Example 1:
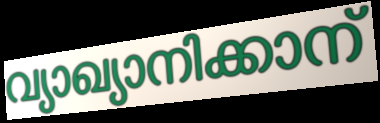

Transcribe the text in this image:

വ്യാഖ്യാനിക്കാന്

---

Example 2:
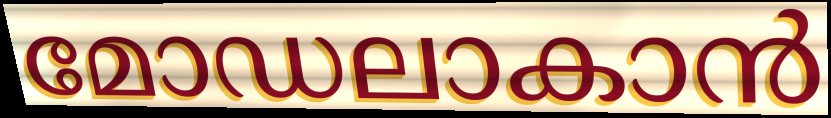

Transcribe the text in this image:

മോഡലാകാൻ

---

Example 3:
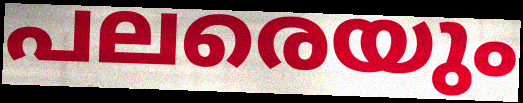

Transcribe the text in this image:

പലരെയും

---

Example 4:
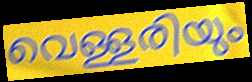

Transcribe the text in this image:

വെള്ളരിയും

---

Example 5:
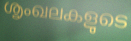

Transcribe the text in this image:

ശൃംഖലകളുടെ